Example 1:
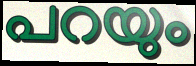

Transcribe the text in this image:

പറയും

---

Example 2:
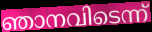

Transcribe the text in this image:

ഞാനവിടെന്ന്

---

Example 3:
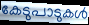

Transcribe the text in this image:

കേടുപാടുകൾ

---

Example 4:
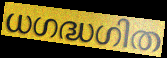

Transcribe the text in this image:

ധഗദ്ധഗിത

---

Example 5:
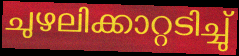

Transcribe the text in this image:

ചുഴലിക്കാറ്റടിച്ചു്